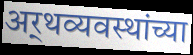
अर्थव्यवस्थांच्या